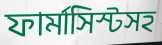
ফার্মাসিস্টসহ